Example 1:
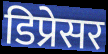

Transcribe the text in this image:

डिप्रेसर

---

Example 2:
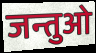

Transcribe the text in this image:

जन्तुओ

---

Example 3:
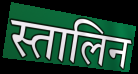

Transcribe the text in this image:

स्तालिन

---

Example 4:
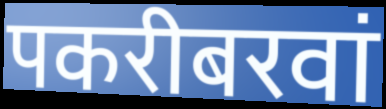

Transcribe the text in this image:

पकरीबरवां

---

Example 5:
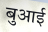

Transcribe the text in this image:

बुआई